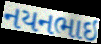
નયનભાઇ